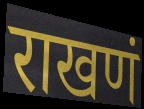
राखणं